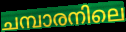
ചമ്പാരനിലെ